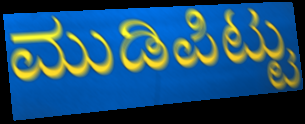
ಮುಡಿಪಿಟ್ಟು